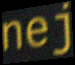
nej